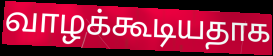
வாழக்கூடியதாக